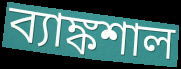
ব্যাঙ্কশাল